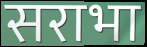
सराभा